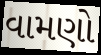
વામણો